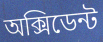
অক্সিডেন্ট